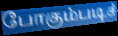
போகும்படிச்